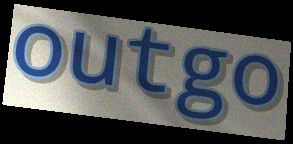
outgo